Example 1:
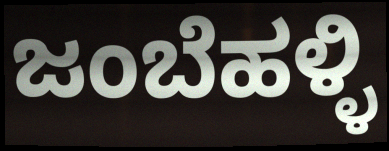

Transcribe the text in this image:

ಜಂಬೆಹಳ್ಳಿ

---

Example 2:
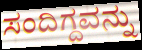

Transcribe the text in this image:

ಸಂದಿಗ್ದವನ್ನು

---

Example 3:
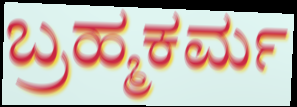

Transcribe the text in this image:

ಬ್ರಹ್ಮಕರ್ಮ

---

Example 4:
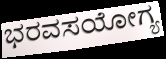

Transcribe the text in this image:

ಭರವಸಯೋಗ್ಯ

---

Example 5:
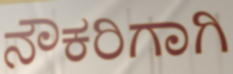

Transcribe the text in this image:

ನೌಕರಿಗಾಗಿ